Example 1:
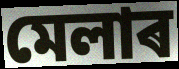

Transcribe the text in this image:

মেলাৰ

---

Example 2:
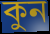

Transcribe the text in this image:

কুন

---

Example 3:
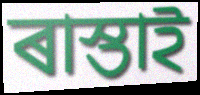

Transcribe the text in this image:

ৰাস্তাই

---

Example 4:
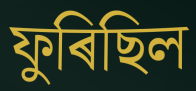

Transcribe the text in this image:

ফুৰিছিল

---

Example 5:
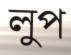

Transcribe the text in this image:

লুপ